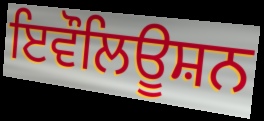
ਇਵੌਲਿਊਸ਼ਨ